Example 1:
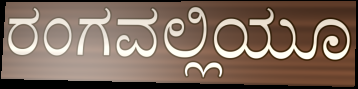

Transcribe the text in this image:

ರಂಗವಲ್ಲಿಯೂ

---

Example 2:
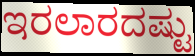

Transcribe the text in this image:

ಇರಲಾರದಷ್ಟು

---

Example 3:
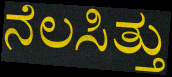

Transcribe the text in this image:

ನೆಲಸಿತ್ತು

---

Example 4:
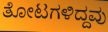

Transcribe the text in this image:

ತೋಟಗಳಿದ್ದವು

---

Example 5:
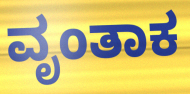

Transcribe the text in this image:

ವೃಂತಾಕ